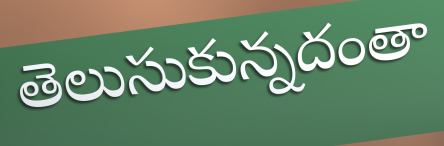
తెలుసుకున్నదంతా